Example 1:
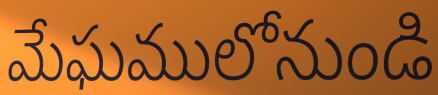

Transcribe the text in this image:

మేఘములోనుండి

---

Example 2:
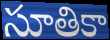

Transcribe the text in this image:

సూతికా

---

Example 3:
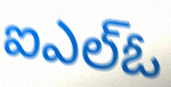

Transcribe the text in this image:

ఐఎల్ఓ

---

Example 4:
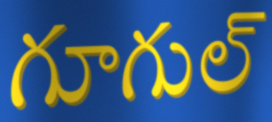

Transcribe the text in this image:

గూగుల్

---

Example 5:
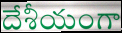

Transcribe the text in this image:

దేశీయంగా